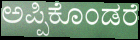
ಅಪ್ಪಿಕೊಂಡರೆ